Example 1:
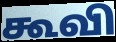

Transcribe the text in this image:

கூவி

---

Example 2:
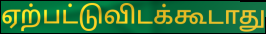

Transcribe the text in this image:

ஏற்பட்டுவிடக்கூடாது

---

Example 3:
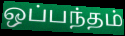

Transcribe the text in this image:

ஒப்பந்தம்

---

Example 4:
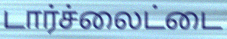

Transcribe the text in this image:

டார்ச்லைட்டை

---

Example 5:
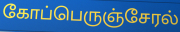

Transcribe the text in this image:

கோப்பெருஞ்சேரல்